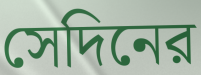
সেদিনের